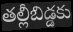
తల్లీబిడ్డకు